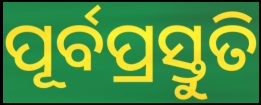
ପୂର୍ବପ୍ରସ୍ତୁତି